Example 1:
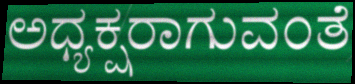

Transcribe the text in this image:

ಅಧ್ಯಕ್ಷರಾಗುವಂತೆ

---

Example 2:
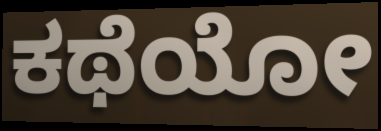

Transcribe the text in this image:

ಕಥೆಯೋ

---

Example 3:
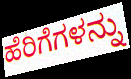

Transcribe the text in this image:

ಹೆರಿಗೆಗಳನ್ನು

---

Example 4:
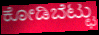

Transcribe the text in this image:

ಕೋಡಿಬೆಟ್ಟು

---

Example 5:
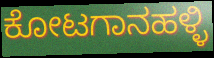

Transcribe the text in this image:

ಕೋಟಗಾನಹಳ್ಳಿ